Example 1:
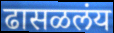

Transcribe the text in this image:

ढासळलंय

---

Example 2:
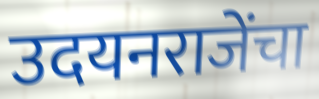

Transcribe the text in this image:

उदयनराजेंचा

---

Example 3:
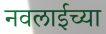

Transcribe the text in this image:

नवलाईच्या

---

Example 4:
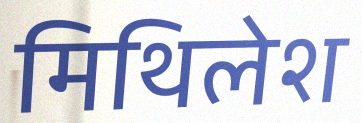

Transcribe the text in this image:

मिथिलेश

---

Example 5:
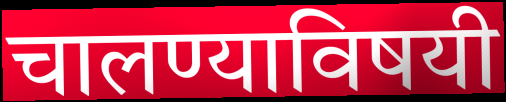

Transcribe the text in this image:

चालण्याविषयी